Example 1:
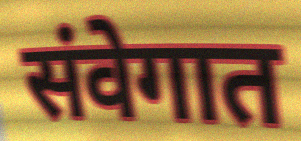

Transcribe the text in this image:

संवेगात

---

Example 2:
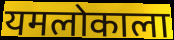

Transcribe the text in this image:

यमलोकाला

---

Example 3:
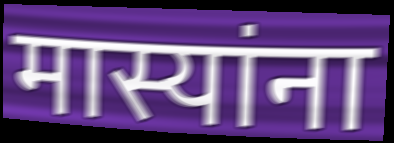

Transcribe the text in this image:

मास्यांना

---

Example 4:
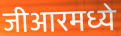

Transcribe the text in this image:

जीआरमध्ये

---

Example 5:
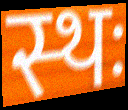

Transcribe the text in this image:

स्थः